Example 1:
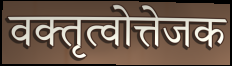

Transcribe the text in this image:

वक्तृत्वोत्तेजक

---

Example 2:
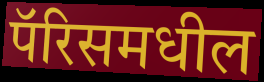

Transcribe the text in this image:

पॅरिसमधील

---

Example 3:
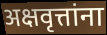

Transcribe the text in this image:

अक्षवृत्तांना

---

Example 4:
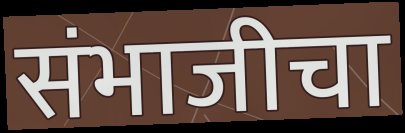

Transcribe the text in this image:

संभाजीचा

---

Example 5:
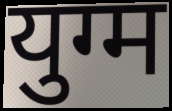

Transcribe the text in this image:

युग्म